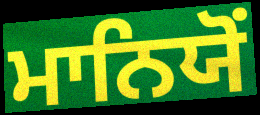
ਮਾਨਿਯੋਂ